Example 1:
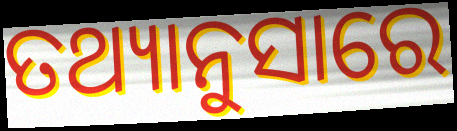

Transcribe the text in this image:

ତଥ୍ୟାନୁସାରେ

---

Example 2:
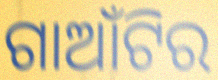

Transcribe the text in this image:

ଗାଆଁଟିର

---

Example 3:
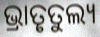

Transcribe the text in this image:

ଭ୍ରାତୃତୁଲ୍ୟ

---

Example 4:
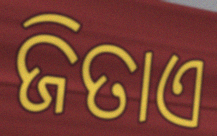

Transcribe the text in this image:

ଜିତାଏ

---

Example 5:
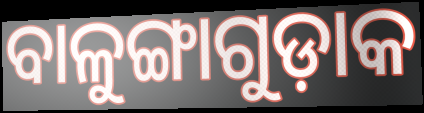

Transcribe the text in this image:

ବାଳୁଙ୍ଗାଗୁଡ଼ାକ